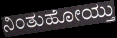
ನಿಂತುಹೋಯ್ತು